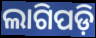
ଲାଗିପଡ଼ି